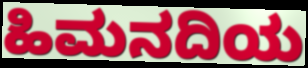
ಹಿಮನದಿಯ